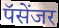
पॅसेंजर